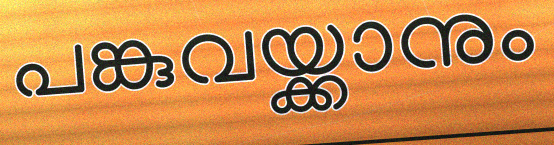
പങ്കുവയ്ക്കാനും